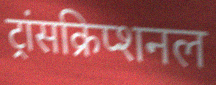
ट्रांसक्रिप्शनल